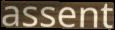
assent